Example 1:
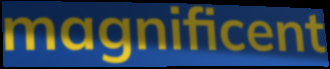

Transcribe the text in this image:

magnificent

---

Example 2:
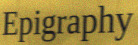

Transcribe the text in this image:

Epigraphy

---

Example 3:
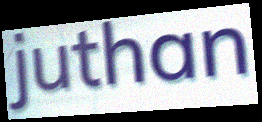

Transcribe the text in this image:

juthan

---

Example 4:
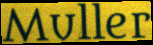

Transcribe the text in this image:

Muller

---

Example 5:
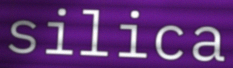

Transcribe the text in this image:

silica